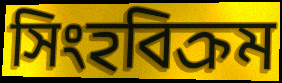
সিংহবিক্রম